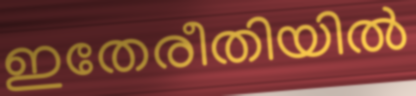
ഇതേരീതിയിൽ